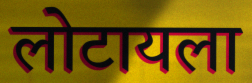
लोटायला